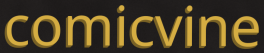
comicvine